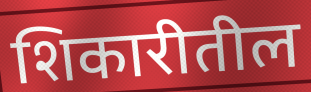
शिकारीतील